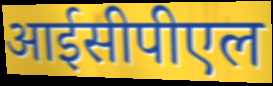
आईसीपीएल